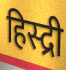
हिस्द्री